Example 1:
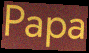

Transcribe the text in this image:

Papa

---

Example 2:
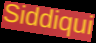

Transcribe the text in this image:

Siddiqui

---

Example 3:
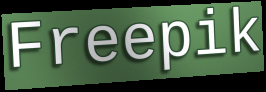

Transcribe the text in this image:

Freepik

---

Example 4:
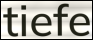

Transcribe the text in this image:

tiefe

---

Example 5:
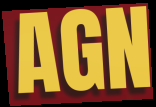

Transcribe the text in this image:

AGN